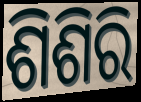
ଶିଶିରି